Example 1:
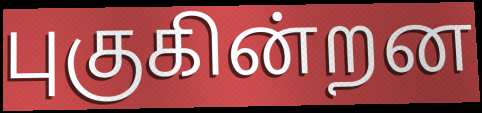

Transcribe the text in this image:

புகுகின்றன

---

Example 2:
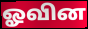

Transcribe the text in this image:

ஓவின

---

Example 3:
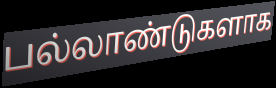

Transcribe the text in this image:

பல்லாண்டுகளாக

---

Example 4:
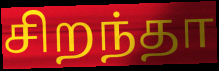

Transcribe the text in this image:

சிறந்தா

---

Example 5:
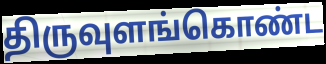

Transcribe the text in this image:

திருவுளங்கொண்ட